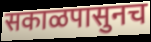
सकाळपासुनच